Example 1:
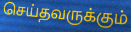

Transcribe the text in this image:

செய்தவருக்கும்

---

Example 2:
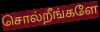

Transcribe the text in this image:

சொல்றீங்களே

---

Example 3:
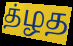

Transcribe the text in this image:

த்ழத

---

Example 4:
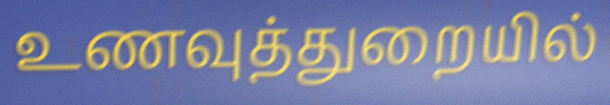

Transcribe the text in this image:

உணவுத்துறையில்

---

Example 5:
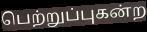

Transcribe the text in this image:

பெற்றுப்புகன்ற